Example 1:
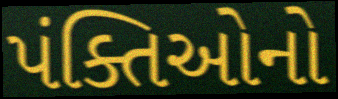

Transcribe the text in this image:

પંક્તિઓનો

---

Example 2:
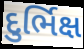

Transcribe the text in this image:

દુર્ભિક્ષ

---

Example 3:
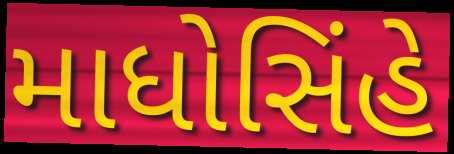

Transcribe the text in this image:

માધોસિંહે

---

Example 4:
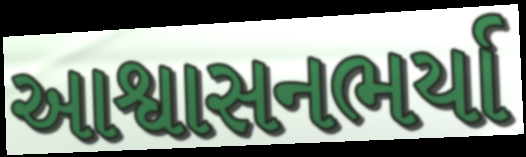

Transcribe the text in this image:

આશ્વાસનભર્યા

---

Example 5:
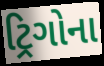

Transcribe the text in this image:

ટ્રિગોના